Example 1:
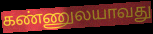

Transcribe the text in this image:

கண்ணுலயாவது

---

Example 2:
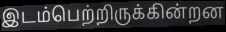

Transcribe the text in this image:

இடம்பெற்றிருக்கின்றன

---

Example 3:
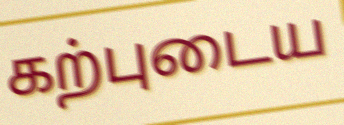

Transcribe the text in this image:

கற்புடைய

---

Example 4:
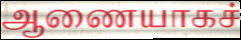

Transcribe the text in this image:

ஆணையாகச்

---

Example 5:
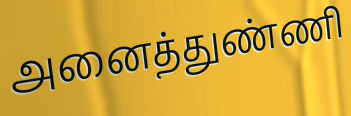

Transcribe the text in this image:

அனைத்துண்ணி